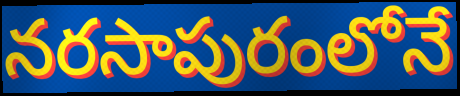
నరసాపురంలోనే